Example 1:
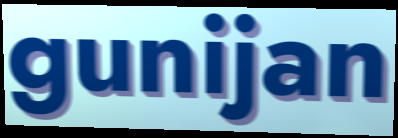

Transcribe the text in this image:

gunijan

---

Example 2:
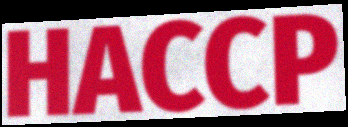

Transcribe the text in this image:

HACCP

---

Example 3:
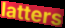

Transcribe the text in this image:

latters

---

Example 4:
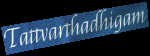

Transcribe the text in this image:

Tattvarthadhigam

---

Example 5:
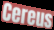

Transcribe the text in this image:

Cereus